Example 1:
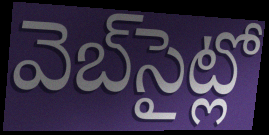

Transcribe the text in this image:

వెబ్‌సైట్లో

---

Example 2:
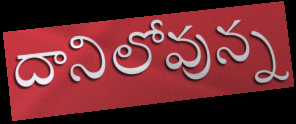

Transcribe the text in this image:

దానిలోవున్న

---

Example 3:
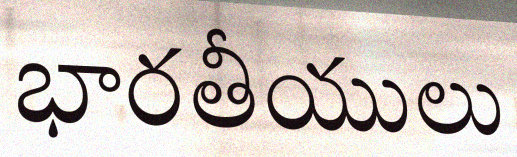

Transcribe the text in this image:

భారతీయులు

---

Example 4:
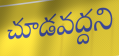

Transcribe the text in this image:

చూడవద్దని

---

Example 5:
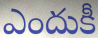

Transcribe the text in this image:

ఎందుకీ